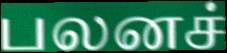
பலனச்